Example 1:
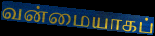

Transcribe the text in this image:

வன்மையாகப்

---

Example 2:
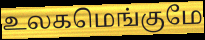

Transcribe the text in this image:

உலகமெங்குமே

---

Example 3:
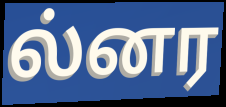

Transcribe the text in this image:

ல்னர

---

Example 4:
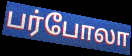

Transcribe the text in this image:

பர்போலா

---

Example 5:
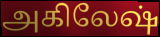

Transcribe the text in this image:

அகிலேஷ்